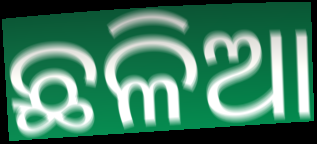
ଛଳିଆ